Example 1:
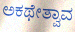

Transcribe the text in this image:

ಅಕಥೇತ್ವಾವ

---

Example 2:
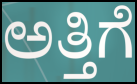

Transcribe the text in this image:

ಅತ್ತಿಗೆ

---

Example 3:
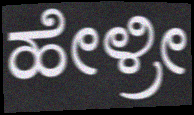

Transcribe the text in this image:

ಹೇಳ್ರೀ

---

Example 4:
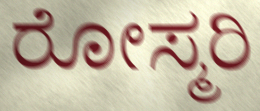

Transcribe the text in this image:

ರೋಸ್ಮರಿ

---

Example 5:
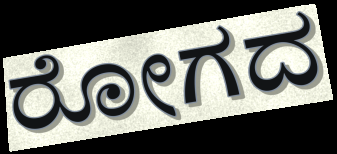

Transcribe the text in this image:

ರೋಗದ